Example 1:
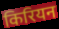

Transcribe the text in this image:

किरियन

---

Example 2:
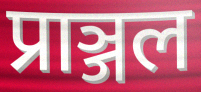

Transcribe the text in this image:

प्राञ्जल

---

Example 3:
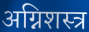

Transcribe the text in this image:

अग्निशस्त्र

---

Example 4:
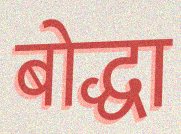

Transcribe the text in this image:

बोद्धा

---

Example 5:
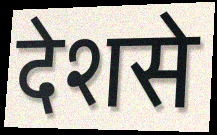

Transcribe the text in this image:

देशसे